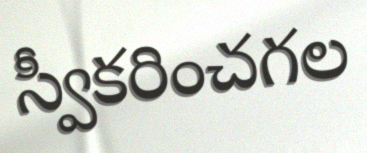
స్వీకరించగల